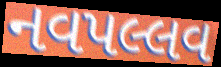
નવપલ્લવ